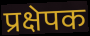
प्रक्षेपक